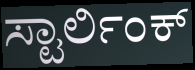
ಸ್ಟಾರ್ಲಿಂಕ್